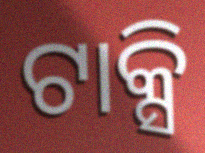
ଟାକ୍ସି